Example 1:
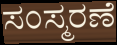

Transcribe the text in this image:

ಸಂಸ್ಮರಣೆ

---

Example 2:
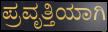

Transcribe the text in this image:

ಪ್ರವೃತ್ತಿಯಾಗಿ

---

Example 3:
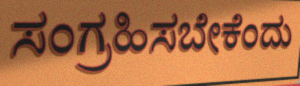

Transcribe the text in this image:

ಸಂಗ್ರಹಿಸಬೇಕೆಂದು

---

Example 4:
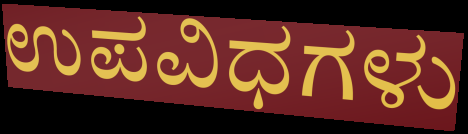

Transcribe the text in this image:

ಉಪವಿಧಗಳು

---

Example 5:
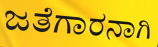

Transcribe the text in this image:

ಜತೆಗಾರನಾಗಿ